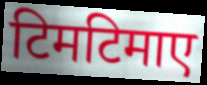
टिमटिमाए